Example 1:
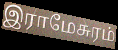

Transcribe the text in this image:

இராமேசுரம்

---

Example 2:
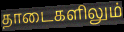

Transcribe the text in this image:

தாடைகளிலும்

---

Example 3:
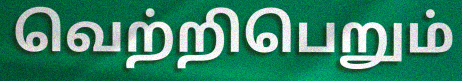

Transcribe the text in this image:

வெற்றிபெறும்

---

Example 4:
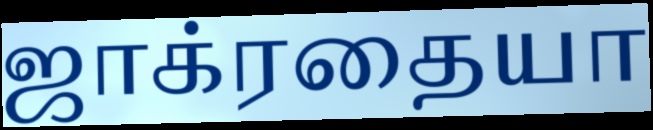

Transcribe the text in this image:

ஜாக்ரதையா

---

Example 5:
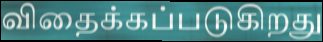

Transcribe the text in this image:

விதைக்கப்படுகிறது